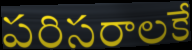
పరిసరాలకే